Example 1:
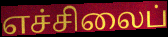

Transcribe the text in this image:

எச்சிலைப்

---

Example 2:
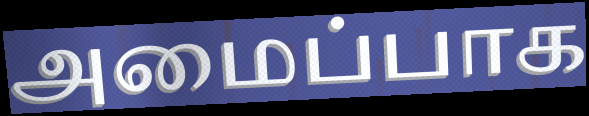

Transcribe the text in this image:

அமைப்பாக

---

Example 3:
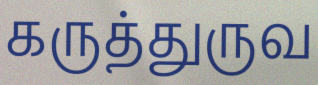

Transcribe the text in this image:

கருத்துருவ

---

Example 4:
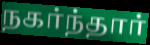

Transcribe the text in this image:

நகர்ந்தார்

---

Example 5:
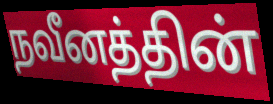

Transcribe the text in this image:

நவீனத்தின்